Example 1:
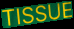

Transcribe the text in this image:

TISSUE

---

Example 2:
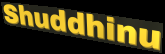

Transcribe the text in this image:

Shuddhinu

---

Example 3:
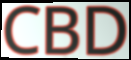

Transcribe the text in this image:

CBD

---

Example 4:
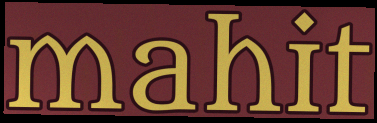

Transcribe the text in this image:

mahit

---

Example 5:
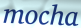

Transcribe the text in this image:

mocha